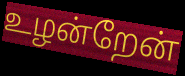
உழன்றேன்